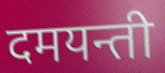
दमयन्ती